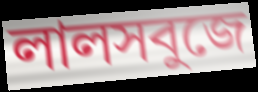
লালসবুজে